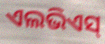
ଏଲଭିଏସ୍